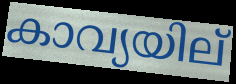
കാവ്യയില്